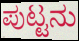
ಪುಟ್ಟನು